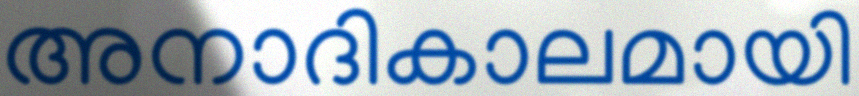
അനാദികാലമായി